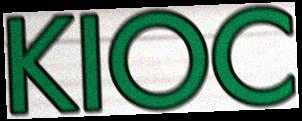
KIOC